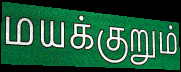
மயக்குறும்